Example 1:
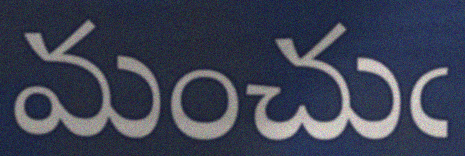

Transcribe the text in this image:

మంచుఁ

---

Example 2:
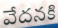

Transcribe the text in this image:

వేదనకి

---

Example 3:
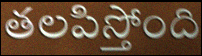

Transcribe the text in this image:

తలపిస్తోంది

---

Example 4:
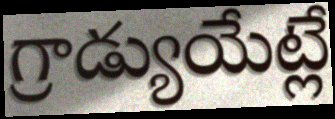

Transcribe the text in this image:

గ్రాడ్యుయేట్లే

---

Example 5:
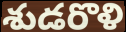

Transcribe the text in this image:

శుడరొళి